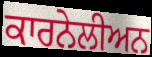
ਕਾਰਨੇਲੀਅਨ